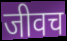
जीवच